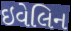
ઇવેલિન